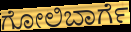
ಗೋಲಿಬಾರ್ಗೆ